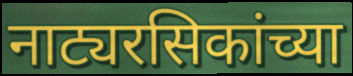
नाट्यरसिकांच्या